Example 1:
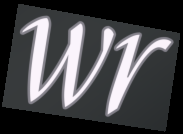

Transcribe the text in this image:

wr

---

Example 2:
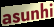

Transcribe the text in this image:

asunhi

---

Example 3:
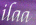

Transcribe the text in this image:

ilaa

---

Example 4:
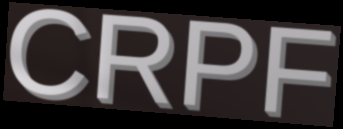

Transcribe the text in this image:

CRPF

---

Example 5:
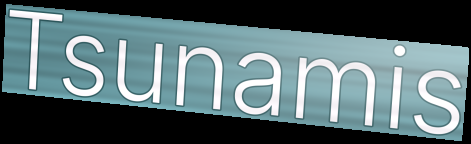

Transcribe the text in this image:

Tsunamis